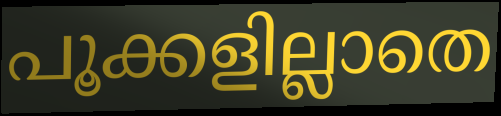
പൂക്കളില്ലാതെ